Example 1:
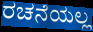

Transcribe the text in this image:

ರಚನೆಯಲ್ಲ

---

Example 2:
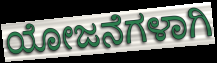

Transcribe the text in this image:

ಯೋಜನೆಗಳಾಗಿ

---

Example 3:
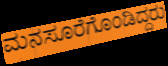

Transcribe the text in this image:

ಮನಸೂರೆಗೊಂಡಿದ್ದರು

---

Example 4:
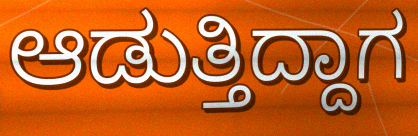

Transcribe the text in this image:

ಆಡುತ್ತಿದ್ದಾಗ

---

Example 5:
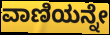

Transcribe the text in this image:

ವಾಣಿಯನ್ನೇ